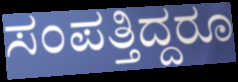
ಸಂಪತ್ತಿದ್ದರೂ